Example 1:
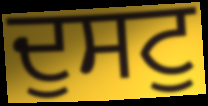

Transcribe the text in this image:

ਦੁਸਟੁ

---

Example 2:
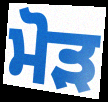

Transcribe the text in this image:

ਮੋੜ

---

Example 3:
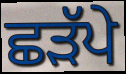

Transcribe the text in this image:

ਛੜੱਪੇ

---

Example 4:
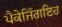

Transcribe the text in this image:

ਪੈਕੇਜਿੰਗਇਹ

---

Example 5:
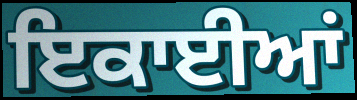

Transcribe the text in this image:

ਇਕਾਈਆਂ